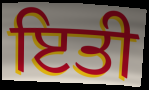
ਇਤੀ